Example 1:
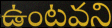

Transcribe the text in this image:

ఉంటవని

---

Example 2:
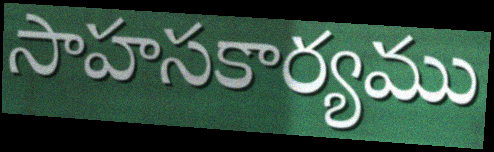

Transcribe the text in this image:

సాహసకార్యము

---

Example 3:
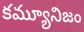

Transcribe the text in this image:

కమ్యూనిజం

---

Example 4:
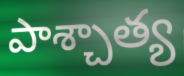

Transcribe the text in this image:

పాశ్చాత్య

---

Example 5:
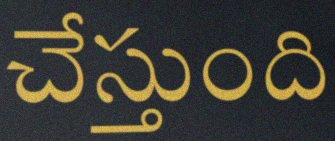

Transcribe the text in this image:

చేస్తుంది